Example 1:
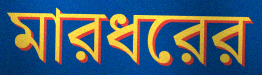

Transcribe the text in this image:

মারধরের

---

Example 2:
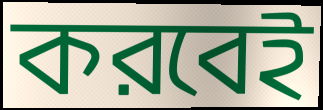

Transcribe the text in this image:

করবেই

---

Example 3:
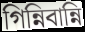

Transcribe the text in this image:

গিন্নিবান্নি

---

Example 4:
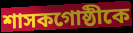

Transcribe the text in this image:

শাসকগোষ্ঠীকে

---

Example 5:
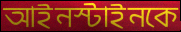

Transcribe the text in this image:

আইনস্টাইনকে